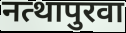
नत्थापुरवा